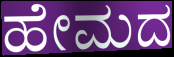
ಹೇಮದ